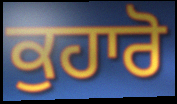
ਕੁਹਾਰੋ